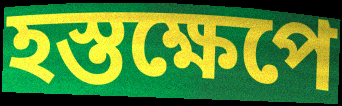
হস্তক্ষেপে